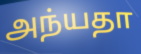
அந்யதா